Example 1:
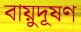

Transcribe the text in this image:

বায়ুদূষণ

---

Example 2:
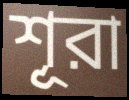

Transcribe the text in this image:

শূরা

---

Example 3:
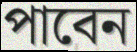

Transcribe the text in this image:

পাবেন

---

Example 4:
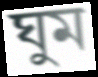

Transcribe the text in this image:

ঘুম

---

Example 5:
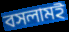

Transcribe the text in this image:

বসলামই